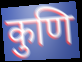
कुणि